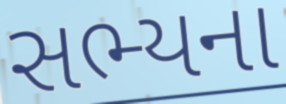
સભ્યના